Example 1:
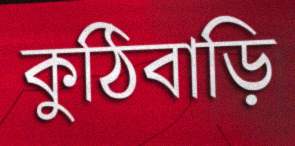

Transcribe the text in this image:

কুঠিবাড়ি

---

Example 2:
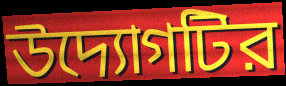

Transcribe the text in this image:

উদ্যোগটির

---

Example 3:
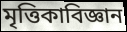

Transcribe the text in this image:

মৃত্তিকাবিজ্ঞান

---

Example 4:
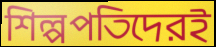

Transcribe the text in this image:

শিল্পপতিদেরই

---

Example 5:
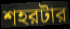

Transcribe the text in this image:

শহরটার